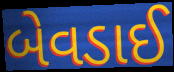
બેવડાઈ